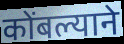
कोंबल्याने